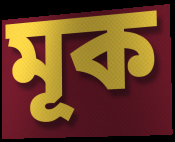
মূক